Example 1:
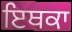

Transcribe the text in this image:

ਇਥਕਾ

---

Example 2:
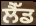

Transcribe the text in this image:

ਲੈੱਡ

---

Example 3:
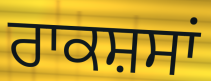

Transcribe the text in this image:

ਰਾਕਸ਼ਸਾਂ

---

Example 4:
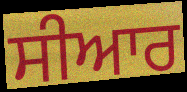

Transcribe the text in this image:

ਸੀਆਰ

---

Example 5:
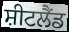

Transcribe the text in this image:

ਸ਼ੀਟਲੈਂਡ